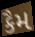
કૈમ